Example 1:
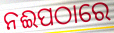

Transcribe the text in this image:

ନଈପଠାରେ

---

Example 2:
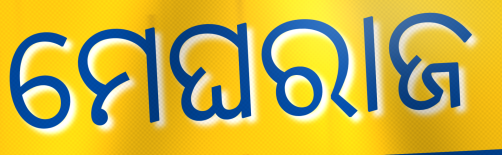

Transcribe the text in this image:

ମେଘରାଜ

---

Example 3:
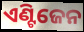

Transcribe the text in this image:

ଏଣ୍ଟିଜେନ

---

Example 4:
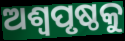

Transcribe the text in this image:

ଅଶ୍ୱପୃଷ୍ଠକୁ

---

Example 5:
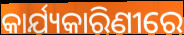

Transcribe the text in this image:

କାର୍ଯ୍ୟକାରିଣୀରେ